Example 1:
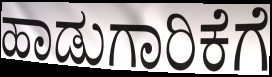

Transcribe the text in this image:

ಹಾಡುಗಾರಿಕೆಗೆ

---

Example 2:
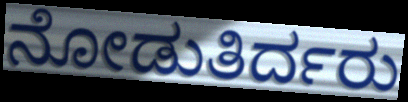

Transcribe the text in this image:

ನೋಡುತಿರ್ದರು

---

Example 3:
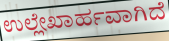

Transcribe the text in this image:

ಉಲ್ಲೇಖಾರ್ಹವಾಗಿದೆ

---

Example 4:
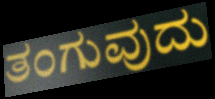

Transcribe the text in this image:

ತಂಗುವುದು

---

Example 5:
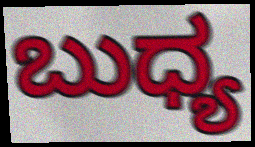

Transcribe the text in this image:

ಬುಧ್ಯ